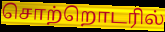
சொற்றொடரில்